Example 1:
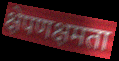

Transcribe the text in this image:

क्षेपणक्षमता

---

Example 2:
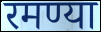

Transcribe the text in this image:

रमण्या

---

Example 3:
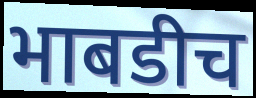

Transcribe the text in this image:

भाबडीच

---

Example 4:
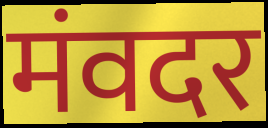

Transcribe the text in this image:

मंवदर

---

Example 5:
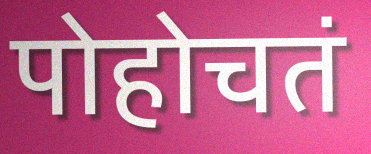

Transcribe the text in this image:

पोहोचतं